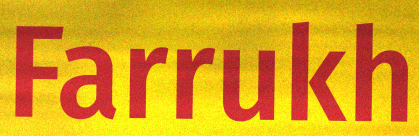
Farrukh